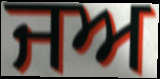
ਜਅ